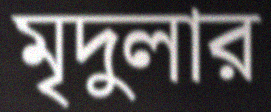
মৃদুলার